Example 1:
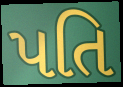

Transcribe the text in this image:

પતિ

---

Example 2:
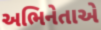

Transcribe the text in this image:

અભિનેતાએ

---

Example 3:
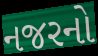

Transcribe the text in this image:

નજરનો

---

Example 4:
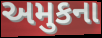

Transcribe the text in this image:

અમુકના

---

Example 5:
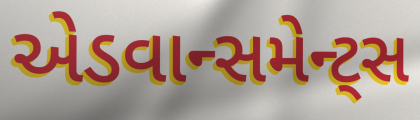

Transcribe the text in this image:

એડવાન્સમેન્ટ્સ